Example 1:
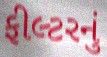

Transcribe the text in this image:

ફીલ્ટરનું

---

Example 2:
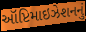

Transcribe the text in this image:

ઑપ્ટિમાઇઝેશનનું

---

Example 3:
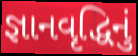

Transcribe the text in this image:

જ્ઞાનવૃદ્ધિનું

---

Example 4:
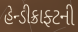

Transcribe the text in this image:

હેન્ડીક્રાફ્ટની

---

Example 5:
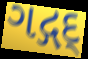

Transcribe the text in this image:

ગદ્ગદ્